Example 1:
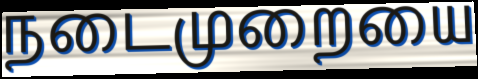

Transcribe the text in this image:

நடைமுறையை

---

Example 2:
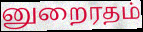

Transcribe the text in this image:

னுறைரதம்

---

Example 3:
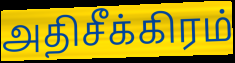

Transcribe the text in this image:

அதிசீக்கிரம்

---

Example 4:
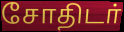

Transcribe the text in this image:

சோதிடர்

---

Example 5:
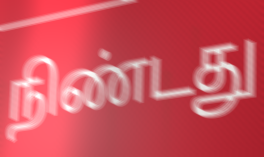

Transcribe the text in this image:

நிண்டது